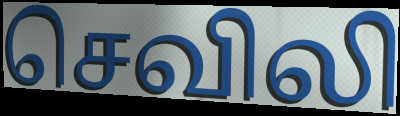
செவிலி